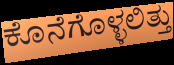
ಕೊನೆಗೊಳ್ಳಲಿತ್ತು